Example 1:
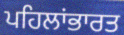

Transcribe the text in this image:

ਪਹਿਲਾਂਭਾਰਤ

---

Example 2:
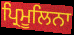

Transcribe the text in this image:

ਪ੍ਰਿਮੂਲਿਨਾ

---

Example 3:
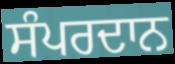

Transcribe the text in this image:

ਸੰਪਰਦਾਨ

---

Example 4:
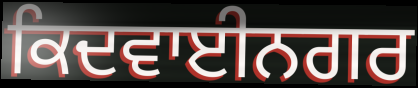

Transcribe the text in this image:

ਕਿਦਵਾਈਨਗਰ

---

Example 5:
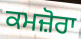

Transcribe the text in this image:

ਕਮਜ਼ੋਰਾ